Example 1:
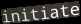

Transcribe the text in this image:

initiate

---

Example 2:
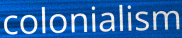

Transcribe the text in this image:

colonialism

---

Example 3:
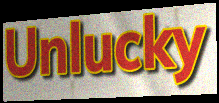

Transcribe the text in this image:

Unlucky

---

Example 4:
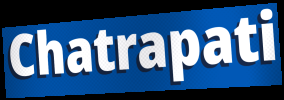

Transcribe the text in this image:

Chatrapati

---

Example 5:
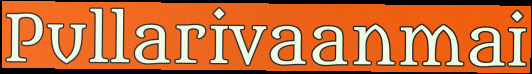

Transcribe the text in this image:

Pullarivaanmai